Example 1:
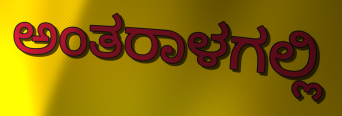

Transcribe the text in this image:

ಅಂತರಾಳಗಲ್ಲಿ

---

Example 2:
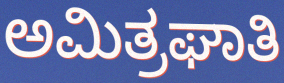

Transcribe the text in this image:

ಅಮಿತ್ರಘಾತಿ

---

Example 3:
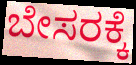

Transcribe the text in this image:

ಬೇಸರಕ್ಕೆ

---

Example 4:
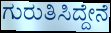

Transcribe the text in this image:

ಗುರುತಿಸಿದ್ದೇನೆ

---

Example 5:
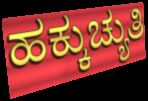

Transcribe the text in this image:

ಹಕ್ಕುಚ್ಯುತಿ